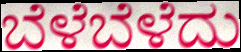
ಬೆಳೆಬೆಳೆದು